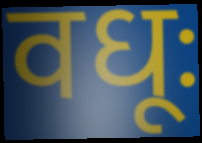
वधूः